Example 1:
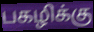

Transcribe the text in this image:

பகழிக்கு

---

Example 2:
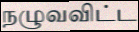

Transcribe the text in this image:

நழுவவிட்ட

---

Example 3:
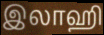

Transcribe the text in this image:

இலாஹி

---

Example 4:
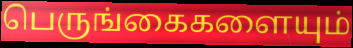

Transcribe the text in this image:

பெருங்கைகளையும்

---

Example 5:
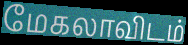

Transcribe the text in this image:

மேகலாவிடம்